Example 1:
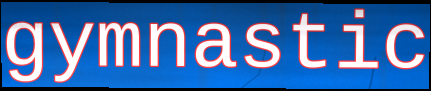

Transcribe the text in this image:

gymnastic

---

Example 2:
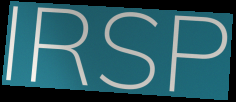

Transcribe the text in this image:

IRSP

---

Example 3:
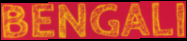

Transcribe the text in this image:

BENGALI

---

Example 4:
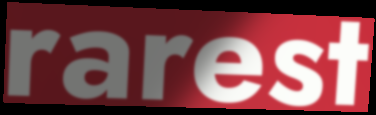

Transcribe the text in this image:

rarest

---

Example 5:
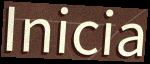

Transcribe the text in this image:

Inicia